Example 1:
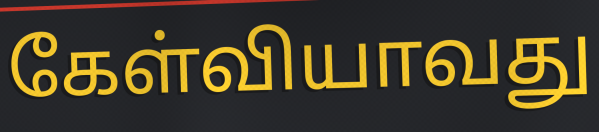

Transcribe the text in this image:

கேள்வியாவது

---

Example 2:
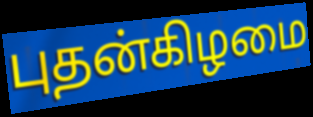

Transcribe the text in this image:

புதன்கிழமை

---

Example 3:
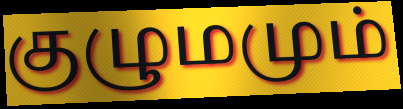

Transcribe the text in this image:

குழுமமும்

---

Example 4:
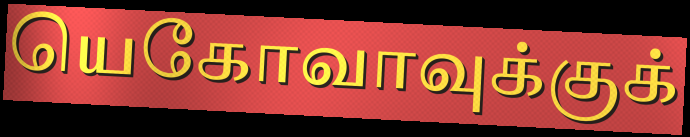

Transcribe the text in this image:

யெகோவாவுக்குக்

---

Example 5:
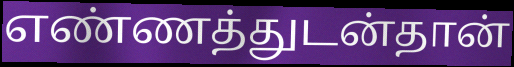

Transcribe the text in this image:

எண்ணத்துடன்தான்